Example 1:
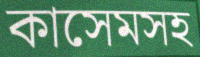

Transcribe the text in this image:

কাসেমসহ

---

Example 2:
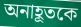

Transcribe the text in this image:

অনাহূতকে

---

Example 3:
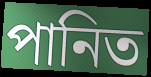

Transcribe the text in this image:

পানিত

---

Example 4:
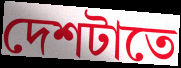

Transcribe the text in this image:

দেশটাতে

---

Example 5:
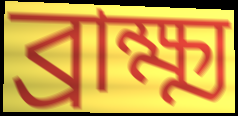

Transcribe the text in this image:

ব্রাক্ষ্ম